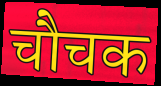
चौचक